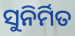
ସୁନିର୍ମିତ